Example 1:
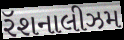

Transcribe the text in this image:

રૅશનાલીઝમ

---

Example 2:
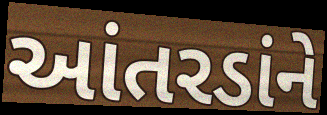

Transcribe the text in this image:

આંતરડાંને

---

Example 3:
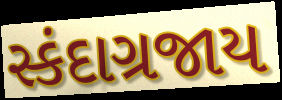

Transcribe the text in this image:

સ્કંદાગ્રજાય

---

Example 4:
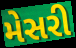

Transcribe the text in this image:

મેસરી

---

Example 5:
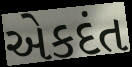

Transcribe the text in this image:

એકદંત